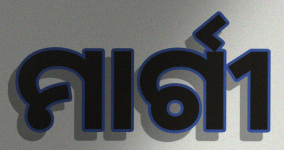
ମାର୍ଗୀ